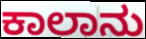
ಕಾಲಾನು